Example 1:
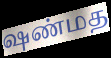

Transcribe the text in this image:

ஷண்மத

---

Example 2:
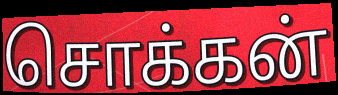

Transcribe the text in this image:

சொக்கன்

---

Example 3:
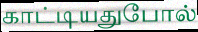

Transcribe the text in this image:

காட்டியதுபோல்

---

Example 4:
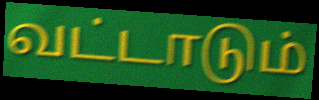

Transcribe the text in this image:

வட்டாடும்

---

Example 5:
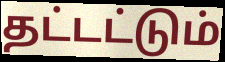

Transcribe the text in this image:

தட்டட்டும்